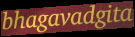
bhagavadgita